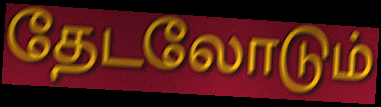
தேடலோடும்